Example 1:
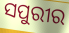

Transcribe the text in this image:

ସପୁରୀର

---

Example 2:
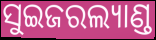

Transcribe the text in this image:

ସୁଇଜରଲ୍ୟାଣ୍ଡ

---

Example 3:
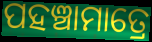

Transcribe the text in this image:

ପହଞ୍ଚାମାତ୍ରେ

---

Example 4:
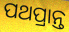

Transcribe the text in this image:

ପଥପ୍ରାନ୍ତ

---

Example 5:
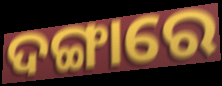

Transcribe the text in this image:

ଦଙ୍ଗାରେ